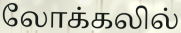
லோக்கலில்